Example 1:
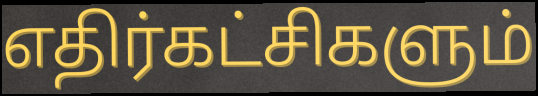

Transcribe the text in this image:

எதிர்கட்சிகளும்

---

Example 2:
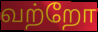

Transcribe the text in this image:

வற்றோ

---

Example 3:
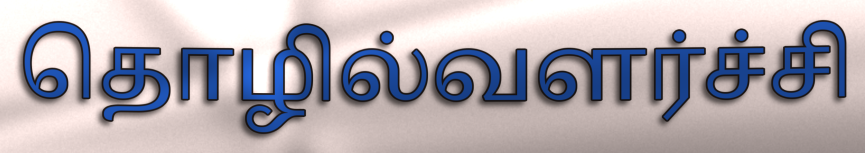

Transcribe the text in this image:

தொழில்வளர்ச்சி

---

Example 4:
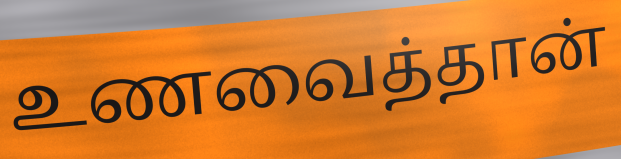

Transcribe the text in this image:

உணவைத்தான்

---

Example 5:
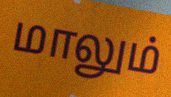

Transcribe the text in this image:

மாலும்